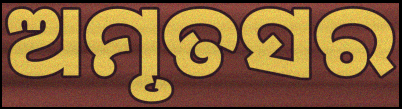
ଅମୃତସର